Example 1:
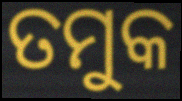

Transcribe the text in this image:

ତମୁକ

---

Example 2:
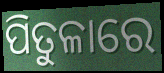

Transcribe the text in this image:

ପିତୁଳାରେ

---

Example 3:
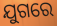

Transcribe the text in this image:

ଯୁଗରେ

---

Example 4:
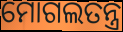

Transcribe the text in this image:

ମୋଗଲତନ୍ତ୍ର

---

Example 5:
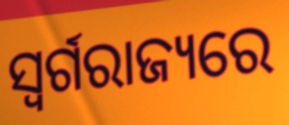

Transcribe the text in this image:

ସ୍ୱର୍ଗରାଜ୍ୟରେ